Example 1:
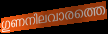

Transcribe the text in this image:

ഗുണനിലവാരത്തെ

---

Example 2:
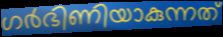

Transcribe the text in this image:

ഗർഭിണിയാകുന്നത്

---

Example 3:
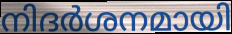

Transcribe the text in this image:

നിദർശനമായി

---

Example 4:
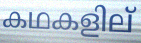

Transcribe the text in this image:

കഥകളില്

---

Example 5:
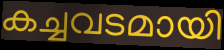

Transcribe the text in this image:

കച്ചവടമായി